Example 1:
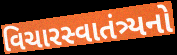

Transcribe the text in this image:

વિચારસ્વાતંત્ર્યનો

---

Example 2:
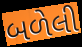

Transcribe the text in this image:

બળેલી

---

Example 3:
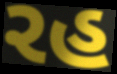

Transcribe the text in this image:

રહ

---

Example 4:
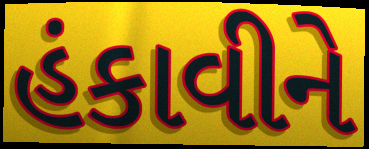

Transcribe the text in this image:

હંકાવીને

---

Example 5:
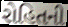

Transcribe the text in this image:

રોહિતની